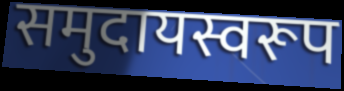
समुदायस्वरूप